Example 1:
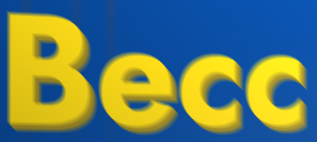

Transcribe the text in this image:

Becc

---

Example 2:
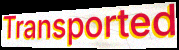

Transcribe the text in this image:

Transported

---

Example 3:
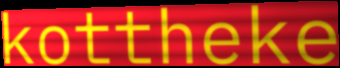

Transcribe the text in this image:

kottheke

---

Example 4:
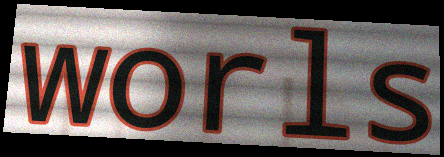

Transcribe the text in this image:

worls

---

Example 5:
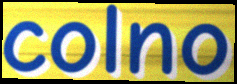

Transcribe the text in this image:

colno